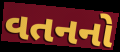
વતનનો